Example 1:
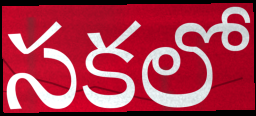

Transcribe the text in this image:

సకలో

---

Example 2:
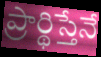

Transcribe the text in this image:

ప్రార్థిస్తేనే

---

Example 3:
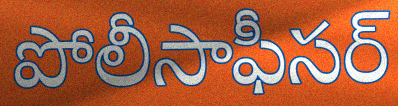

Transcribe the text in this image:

పోలీసాఫీసర్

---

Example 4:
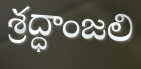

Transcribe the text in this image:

శ్రద్ధాంజలి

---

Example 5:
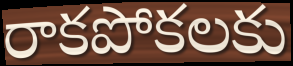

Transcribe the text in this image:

రాకపోకలకు